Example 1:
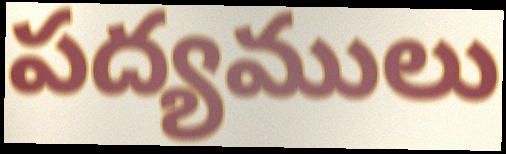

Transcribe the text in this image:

పద్యములు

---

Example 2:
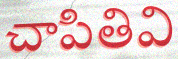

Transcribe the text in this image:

చాపితివి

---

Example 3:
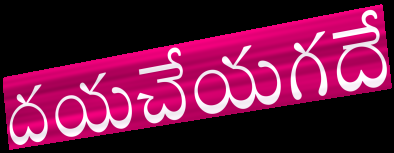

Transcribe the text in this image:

దయచేయగదే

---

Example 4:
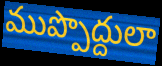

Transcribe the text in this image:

ముప్పొద్దులా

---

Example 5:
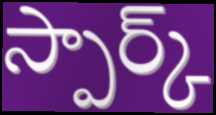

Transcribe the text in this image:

స్పార్క్